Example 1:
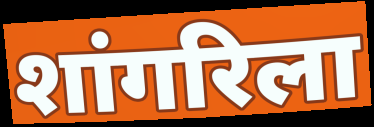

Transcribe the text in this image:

शांगरिला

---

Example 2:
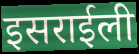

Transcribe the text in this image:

इसराईली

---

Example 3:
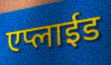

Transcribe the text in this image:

एप्लाईड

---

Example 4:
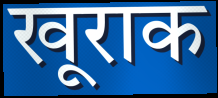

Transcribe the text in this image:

खूराक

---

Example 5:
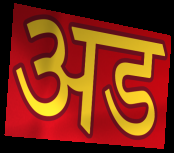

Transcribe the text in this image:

अड